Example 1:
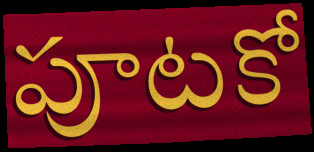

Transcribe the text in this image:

పూటకో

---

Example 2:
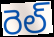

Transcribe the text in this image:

రెల్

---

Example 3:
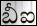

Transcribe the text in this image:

బీఐ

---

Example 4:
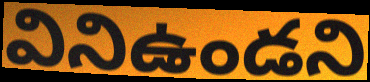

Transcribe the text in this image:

వినిఉండని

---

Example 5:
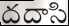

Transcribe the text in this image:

దదాసి